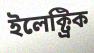
ইলেক্ট্ৰিক